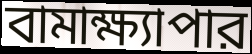
বামাক্ষ্যাপার